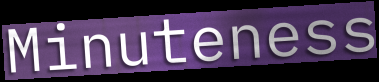
Minuteness